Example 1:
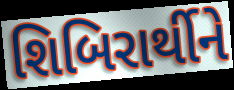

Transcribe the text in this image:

શિબિરાર્થીને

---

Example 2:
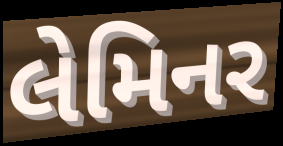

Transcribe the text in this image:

લેમિનર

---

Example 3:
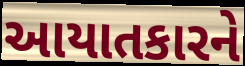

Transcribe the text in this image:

આયાતકારને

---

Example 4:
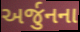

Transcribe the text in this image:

અર્જુનના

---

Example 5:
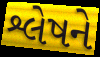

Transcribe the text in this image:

શ્લેષને